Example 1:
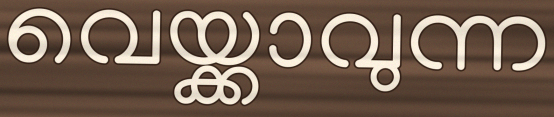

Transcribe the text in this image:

വെയ്ക്കാവുന്ന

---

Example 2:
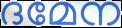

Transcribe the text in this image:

ദമേന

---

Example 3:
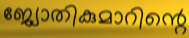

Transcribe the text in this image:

ജ്യോതികുമാറിന്റെ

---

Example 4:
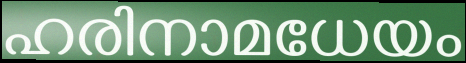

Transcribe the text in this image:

ഹരിനാമധേയം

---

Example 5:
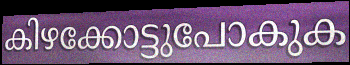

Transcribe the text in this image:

കിഴക്കോട്ടുപോകുക